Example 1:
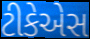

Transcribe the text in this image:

ટીકેએસ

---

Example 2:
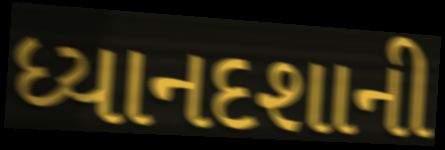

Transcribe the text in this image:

ધ્યાનદશાની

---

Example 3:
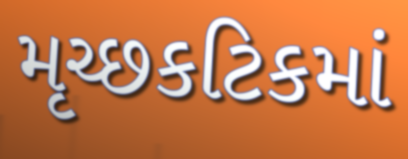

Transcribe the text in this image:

મૃચ્છકટિકમાં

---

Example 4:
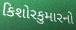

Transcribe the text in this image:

કિશોરકુમારનો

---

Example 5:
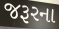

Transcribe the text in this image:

જરૂરના